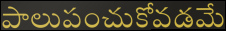
పాలుపంచుకోవడమే